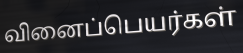
வினைப்பெயர்கள்